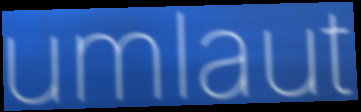
umlaut